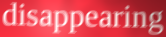
disappearing